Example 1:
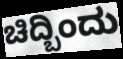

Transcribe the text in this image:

ಚಿದ್ಬಿಂದು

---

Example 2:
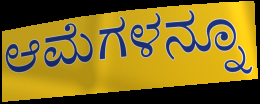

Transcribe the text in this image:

ಆಮೆಗಳನ್ನೂ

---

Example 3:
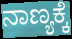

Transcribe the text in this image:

ನಾಣ್ಯಕ್ಕೆ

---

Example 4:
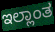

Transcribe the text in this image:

ಇಲ್ಲಾಂತ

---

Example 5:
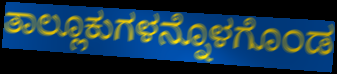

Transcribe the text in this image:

ತಾಲ್ಲೂಕುಗಳನ್ನೊಳಗೊಂಡ